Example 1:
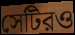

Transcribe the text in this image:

সেটিরও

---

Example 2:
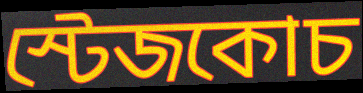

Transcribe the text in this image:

স্টেজকোচ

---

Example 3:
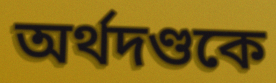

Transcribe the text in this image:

অর্থদণ্ডকে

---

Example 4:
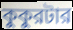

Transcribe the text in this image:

কুকুরটার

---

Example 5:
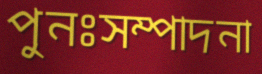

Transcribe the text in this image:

পুনঃসম্পাদনা